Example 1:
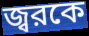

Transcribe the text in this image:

জ্বরকে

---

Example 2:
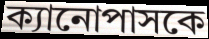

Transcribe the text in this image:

ক্যানোপাসকে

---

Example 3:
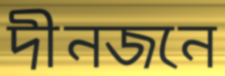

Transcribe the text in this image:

দীনজনে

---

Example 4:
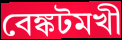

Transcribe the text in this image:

বেঙ্কটমখী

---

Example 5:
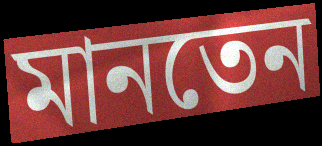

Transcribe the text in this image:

মানতেন